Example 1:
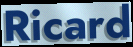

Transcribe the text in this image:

Ricard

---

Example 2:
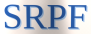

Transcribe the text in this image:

SRPF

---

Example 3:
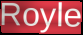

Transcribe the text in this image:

Royle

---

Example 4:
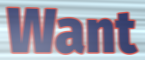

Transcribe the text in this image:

Want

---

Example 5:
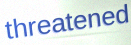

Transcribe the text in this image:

threatened